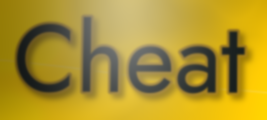
Cheat